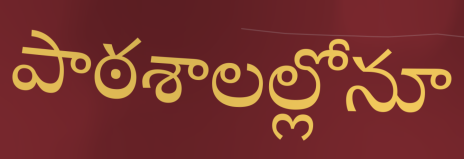
పాఠశాలల్లోనూ